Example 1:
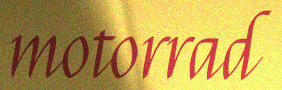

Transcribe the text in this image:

motorrad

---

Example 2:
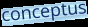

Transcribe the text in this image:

conceptus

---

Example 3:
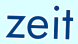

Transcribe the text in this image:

zeit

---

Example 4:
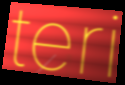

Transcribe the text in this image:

teri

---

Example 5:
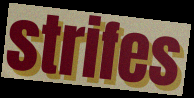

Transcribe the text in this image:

strifes